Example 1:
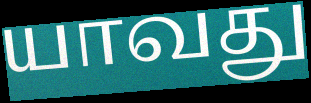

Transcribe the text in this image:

யாவது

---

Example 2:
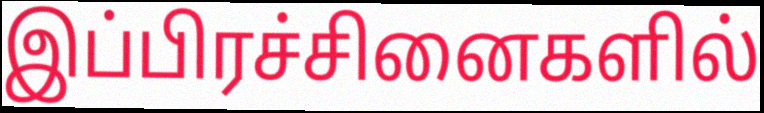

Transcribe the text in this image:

இப்பிரச்சினைகளில்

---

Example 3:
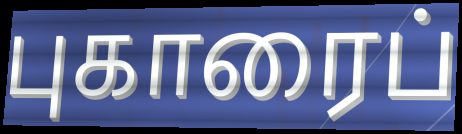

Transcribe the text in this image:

புகாரைப்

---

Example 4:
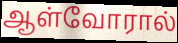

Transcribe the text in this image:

ஆள்வோரால்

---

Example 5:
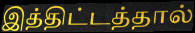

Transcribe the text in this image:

இத்திட்டத்தால்